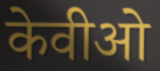
केवीओ